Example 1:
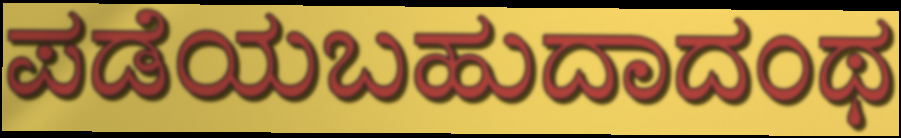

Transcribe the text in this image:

ಪಡೆಯಬಹುದಾದಂಥ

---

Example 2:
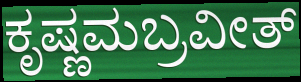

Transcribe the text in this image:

ಕೃಷ್ಣಮಬ್ರವೀತ್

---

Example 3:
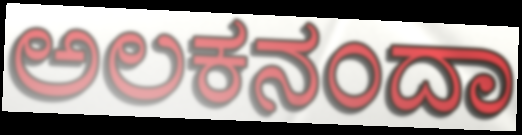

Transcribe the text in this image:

ಅಲಕನಂದಾ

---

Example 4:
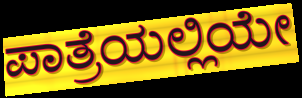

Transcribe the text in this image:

ಪಾತ್ರೆಯಲ್ಲಿಯೇ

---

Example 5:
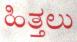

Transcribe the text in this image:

ಹಿತ್ತಲು